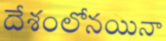
దేశంలోనయినా